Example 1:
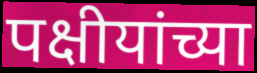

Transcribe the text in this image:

पक्षीयांच्या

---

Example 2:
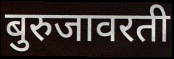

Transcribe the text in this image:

बुरुजावरती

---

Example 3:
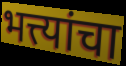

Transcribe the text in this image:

भत्त्यांचा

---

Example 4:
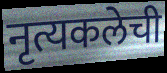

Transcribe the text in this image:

नृत्यकलेची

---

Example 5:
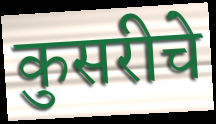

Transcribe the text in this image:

कुसरीचे